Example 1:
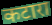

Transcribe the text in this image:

कटारा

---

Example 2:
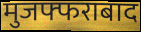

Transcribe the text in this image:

मुजफ्फराबाद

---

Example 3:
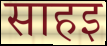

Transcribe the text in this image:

साहइ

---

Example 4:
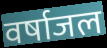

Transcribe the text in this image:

वर्षाजल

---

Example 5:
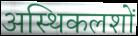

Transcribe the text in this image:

अस्थिकलशों